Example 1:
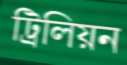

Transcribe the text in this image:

ট্রিলিয়ন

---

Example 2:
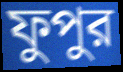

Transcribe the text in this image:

ফুপুর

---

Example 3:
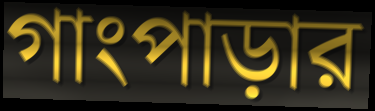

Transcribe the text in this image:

গাংপাড়ার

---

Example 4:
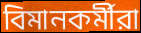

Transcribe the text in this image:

বিমানকর্মীরা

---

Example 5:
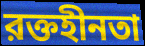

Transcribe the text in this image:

রক্তহীনতা